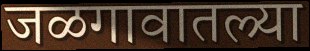
जळगावातल्या